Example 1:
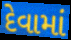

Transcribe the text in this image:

દેવામાં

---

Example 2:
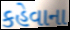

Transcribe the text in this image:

કહેવાના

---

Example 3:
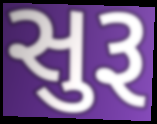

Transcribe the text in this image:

સુરૂ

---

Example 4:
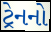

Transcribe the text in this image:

ટ્રેનનો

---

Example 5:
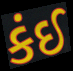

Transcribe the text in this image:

કંઈ